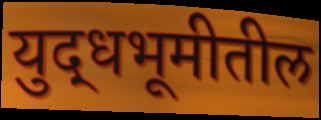
युद्धभूमीतील